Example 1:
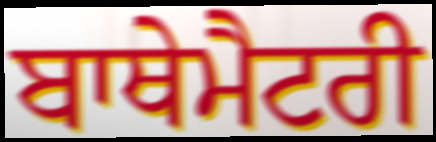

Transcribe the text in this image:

ਬਾਥੇਮੈਟਰੀ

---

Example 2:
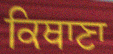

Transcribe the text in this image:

ਕਿਥਾਣਾ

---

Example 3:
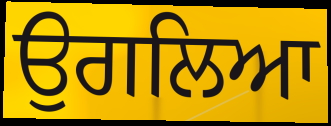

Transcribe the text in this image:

ਉਗਲਿਆ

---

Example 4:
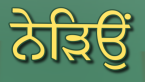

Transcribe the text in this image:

ਨੇੜਿਉਂ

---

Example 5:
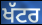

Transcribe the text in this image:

ਖੱਟਰ